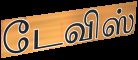
டேவிஸ்